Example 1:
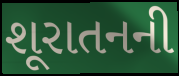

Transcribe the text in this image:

શૂરાતનની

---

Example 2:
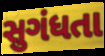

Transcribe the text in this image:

સુગંધતા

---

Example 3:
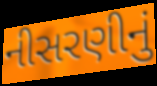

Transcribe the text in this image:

નીસરણીનું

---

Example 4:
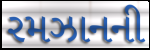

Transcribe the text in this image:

રમઝાનની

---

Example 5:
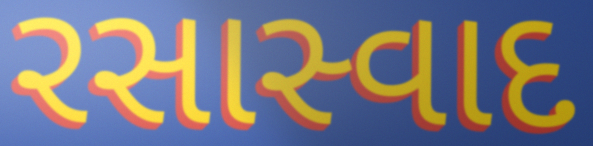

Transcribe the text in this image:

રસાસ્વાદ